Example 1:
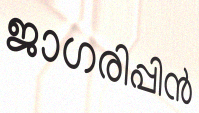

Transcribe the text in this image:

ജാഗരിപ്പിൻ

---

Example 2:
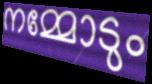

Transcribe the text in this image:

നമ്മോടും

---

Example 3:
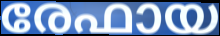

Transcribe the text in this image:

രേഫായ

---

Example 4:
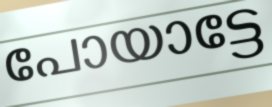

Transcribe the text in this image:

പോയാട്ടേ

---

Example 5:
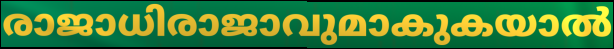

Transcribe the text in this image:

രാജാധിരാജാവുമാകുകയാൽ